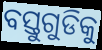
ବସ୍ତୁଗୁଡିକୁ